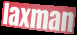
laxman